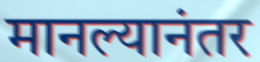
मानल्यानंतर